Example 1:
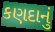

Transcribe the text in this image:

કણદાનું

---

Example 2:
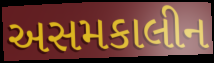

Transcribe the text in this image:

અસમકાલીન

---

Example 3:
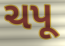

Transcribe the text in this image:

ચપૂ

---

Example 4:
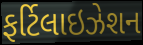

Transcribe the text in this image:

ફર્ટિલાઇઝેશન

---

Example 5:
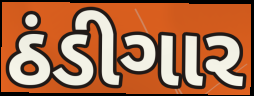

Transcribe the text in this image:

ઠંડીગાર